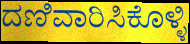
ದಣಿವಾರಿಸಿಕೊಳ್ಳಿ